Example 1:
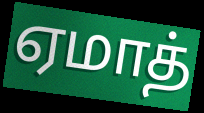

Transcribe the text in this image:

ஏமாத்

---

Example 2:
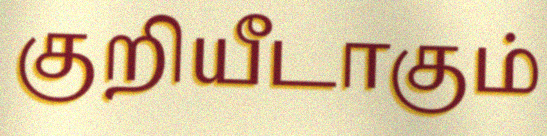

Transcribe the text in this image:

குறியீடாகும்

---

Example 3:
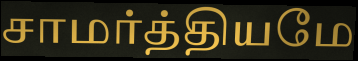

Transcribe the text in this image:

சாமர்த்தியமே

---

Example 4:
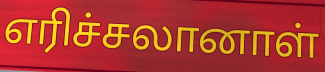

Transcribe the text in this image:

எரிச்சலானாள்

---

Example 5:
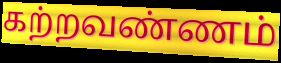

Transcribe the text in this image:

கற்றவண்ணம்